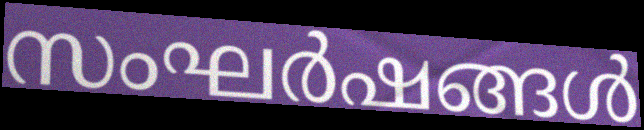
സംഘർഷങ്ങൾ